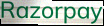
Razorpay